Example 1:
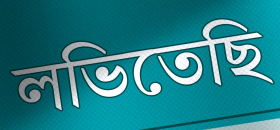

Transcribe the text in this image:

লভিতেছি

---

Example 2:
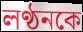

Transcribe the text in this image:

লণ্ঠনকে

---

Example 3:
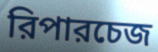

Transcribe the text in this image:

রিপারচেজ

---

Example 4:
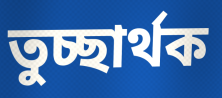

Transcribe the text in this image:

তুচ্ছার্থক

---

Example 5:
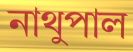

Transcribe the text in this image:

নাথুপাল